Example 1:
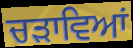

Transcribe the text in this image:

ਚੜਾਵਿਆਂ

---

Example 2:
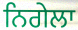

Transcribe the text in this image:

ਨਿਗੇਲਾ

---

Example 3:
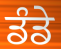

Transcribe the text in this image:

ਡੰਡੇ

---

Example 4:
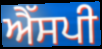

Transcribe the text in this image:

ਐੱਸਪੀ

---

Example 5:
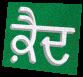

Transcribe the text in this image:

ਕ਼ੈਦ